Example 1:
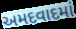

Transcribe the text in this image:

અમદવાદમાં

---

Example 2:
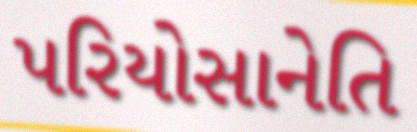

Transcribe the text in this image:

પરિયોસાનેતિ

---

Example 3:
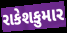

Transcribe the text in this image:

રાકેશકુમાર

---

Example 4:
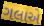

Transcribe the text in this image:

ગલાએ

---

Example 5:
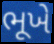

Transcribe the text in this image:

ભૂખે